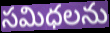
సమిధలను